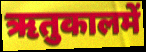
ऋतुकालमें